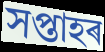
সপ্তাহৰ